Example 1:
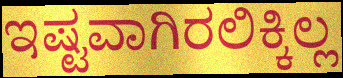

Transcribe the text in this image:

ಇಷ್ಟವಾಗಿರಲಿಕ್ಕಿಲ್ಲ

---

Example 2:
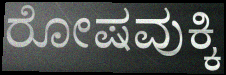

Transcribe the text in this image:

ರೋಷವುಕ್ಕಿ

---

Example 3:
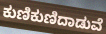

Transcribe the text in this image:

ಕುಣಿಕುಣಿದಾಡುವೆ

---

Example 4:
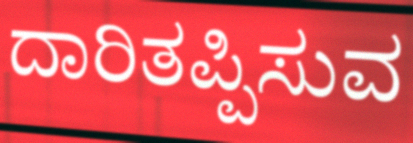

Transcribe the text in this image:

ದಾರಿತಪ್ಪಿಸುವ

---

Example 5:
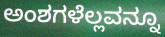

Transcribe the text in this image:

ಅಂಶಗಳೆಲ್ಲವನ್ನೂ